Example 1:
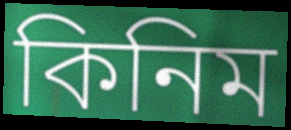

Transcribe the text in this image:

কিনিম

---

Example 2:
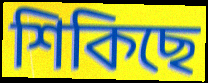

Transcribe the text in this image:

শিকিছে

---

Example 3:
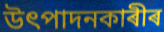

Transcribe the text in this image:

উৎপাদনকাৰীৰ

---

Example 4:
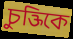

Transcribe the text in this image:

চুক্তিকে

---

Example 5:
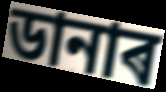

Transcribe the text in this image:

ডানাৰ